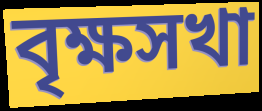
বৃক্ষসখা